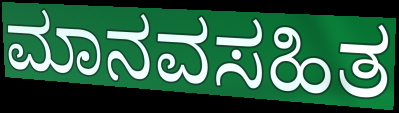
ಮಾನವಸಹಿತ